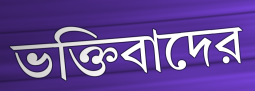
ভক্তিবাদের